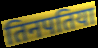
तिनपतिया